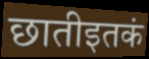
छातीइतकं